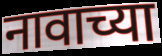
नावाच्या